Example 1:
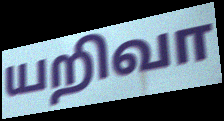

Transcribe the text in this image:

யறிவா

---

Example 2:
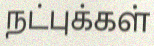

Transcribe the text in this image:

நட்புக்கள்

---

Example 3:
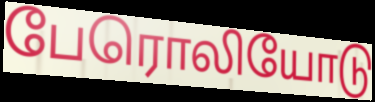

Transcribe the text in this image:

பேரொலியோடு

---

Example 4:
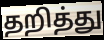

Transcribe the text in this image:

தறித்து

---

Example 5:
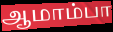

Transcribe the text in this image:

ஆமாம்பா